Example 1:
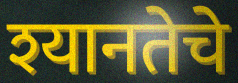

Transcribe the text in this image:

श्यानतेचे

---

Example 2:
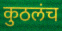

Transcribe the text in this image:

कुठलंच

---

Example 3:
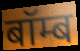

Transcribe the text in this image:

बॉम्ब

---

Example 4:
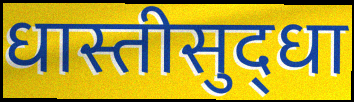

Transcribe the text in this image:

धास्तीसुद्धा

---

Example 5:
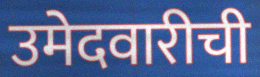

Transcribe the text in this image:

उमेदवारीची